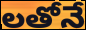
లతోనే